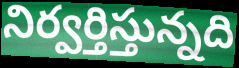
నిర్వర్తిస్తున్నది